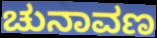
ಚುನಾವಣ